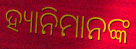
ହ୍ୟାନିମାନଙ୍କ